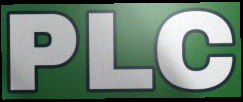
PLC